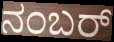
ನಂಬರ್